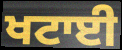
ਖਟਾਈ